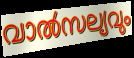
വാൽസല്യവും